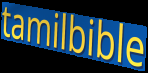
tamilbible